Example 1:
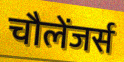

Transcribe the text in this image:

चौलेंजर्स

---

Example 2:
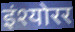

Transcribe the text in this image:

इंश्योरर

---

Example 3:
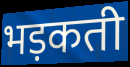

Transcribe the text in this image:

भड़कती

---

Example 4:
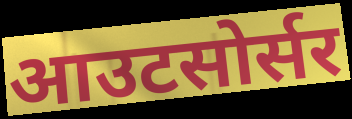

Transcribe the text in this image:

आउटसोर्सर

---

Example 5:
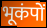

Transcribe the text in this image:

भूकंपों